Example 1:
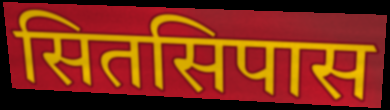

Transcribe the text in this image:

सितसिपास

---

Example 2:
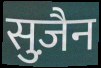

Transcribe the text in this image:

सुज़ैन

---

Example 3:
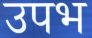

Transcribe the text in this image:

उपभ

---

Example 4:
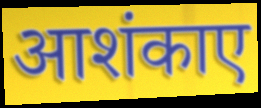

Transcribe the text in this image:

आशंकाए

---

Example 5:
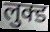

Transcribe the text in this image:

लुक्ड